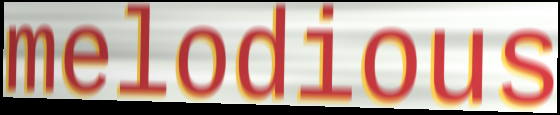
melodious